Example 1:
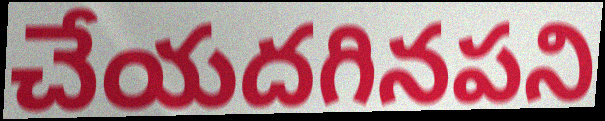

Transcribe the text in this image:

చేయదగినపని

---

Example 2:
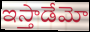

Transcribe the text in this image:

ఇస్తాడేమో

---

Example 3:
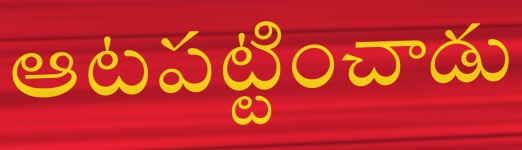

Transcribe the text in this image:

ఆటపట్టించాడు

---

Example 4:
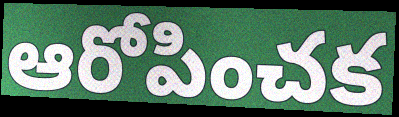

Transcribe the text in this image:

ఆరోపించక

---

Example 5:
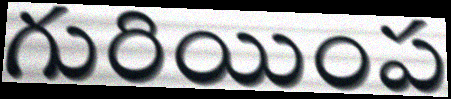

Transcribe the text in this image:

గురియింప